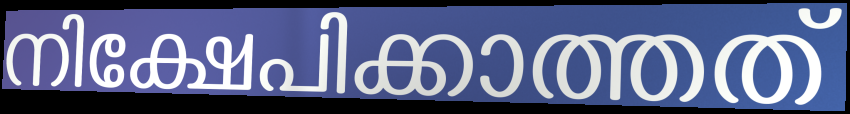
നിക്ഷേപിക്കാത്തത്